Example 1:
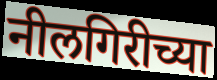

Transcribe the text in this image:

नीलगिरीच्या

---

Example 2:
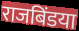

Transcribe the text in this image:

राजबिंडया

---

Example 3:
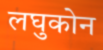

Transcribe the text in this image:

लघुकोन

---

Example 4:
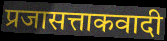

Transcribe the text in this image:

प्रजासत्ताकवादी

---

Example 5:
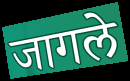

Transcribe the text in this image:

जागले